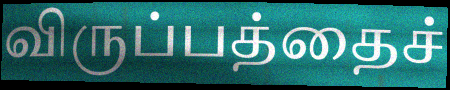
விருப்பத்தைச்